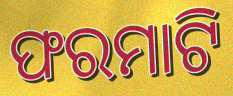
ଫରମାଟି